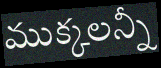
ముక్కలన్నీ